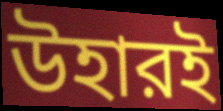
উহারই